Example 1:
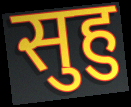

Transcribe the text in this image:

सुहु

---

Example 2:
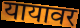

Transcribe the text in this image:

यायावर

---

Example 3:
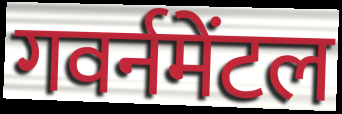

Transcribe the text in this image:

गवर्नमेंटल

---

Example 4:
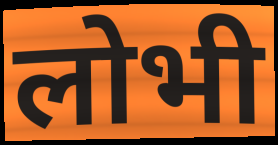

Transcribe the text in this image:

लोभी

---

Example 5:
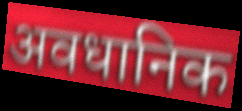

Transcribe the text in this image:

अवधानिक